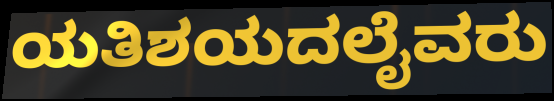
ಯತಿಶಯದಲೈವರು